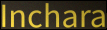
Inchara